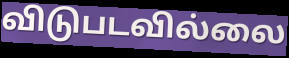
விடுபடவில்லை